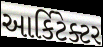
આર્કિટેક્ટર